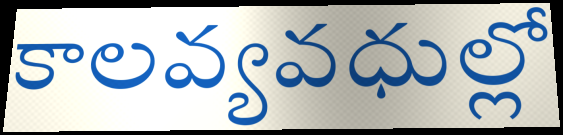
కాలవ్యవధుల్లో